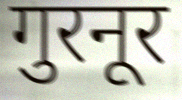
गुरनूर